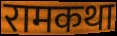
रामकथा